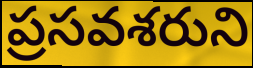
ప్రసవశరుని